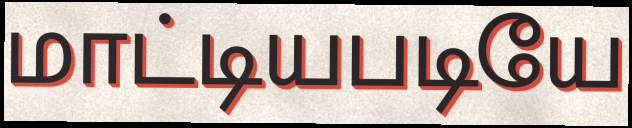
மாட்டியபடியே